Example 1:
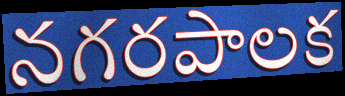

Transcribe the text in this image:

నగరపాలక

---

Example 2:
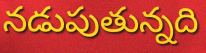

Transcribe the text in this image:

నడుపుతున్నది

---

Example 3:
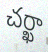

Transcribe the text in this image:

చర్ఖా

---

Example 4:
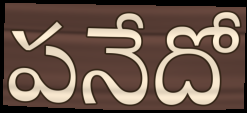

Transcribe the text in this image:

పనేదో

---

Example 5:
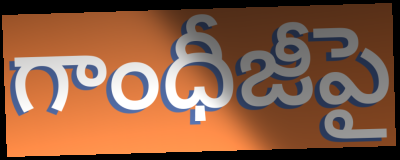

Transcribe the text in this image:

గాంధీజీపై